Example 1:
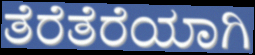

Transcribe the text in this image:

ತೆರೆತೆರೆಯಾಗಿ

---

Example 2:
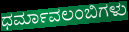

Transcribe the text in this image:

ಧರ್ಮಾವಲಂಬಿಗಳು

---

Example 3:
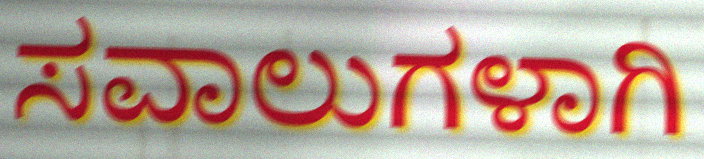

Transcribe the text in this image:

ಸವಾಲುಗಳಾಗಿ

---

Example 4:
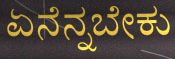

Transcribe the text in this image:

ಏನೆನ್ನಬೇಕು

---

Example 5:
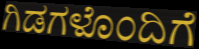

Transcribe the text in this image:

ಗಿಡಗಳೊಂದಿಗೆ